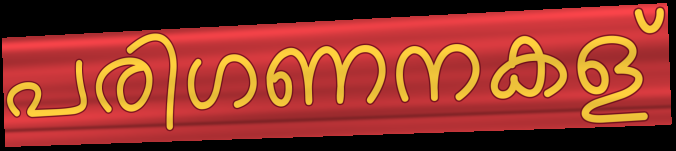
പരിഗണനകള്